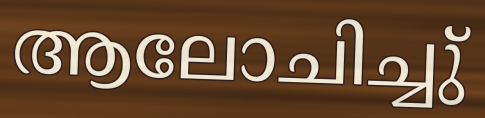
ആലോചിച്ചു്